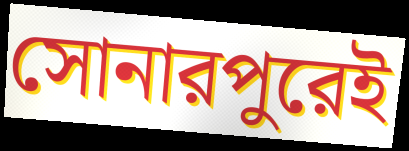
সোনারপুরেই